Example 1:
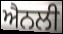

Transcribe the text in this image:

ਐਨਲੀ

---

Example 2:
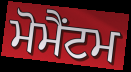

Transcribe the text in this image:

ਮੋਮੈਂਟਮ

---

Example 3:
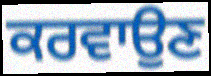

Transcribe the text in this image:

ਕਰਵਾਉਣ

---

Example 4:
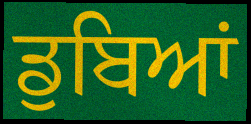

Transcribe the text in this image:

ਡੁਬਿਆਂ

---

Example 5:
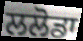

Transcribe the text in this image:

ਲਲੋਡਾ